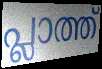
പ്ലാത്ത്